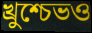
খ্রুশ্চেভও